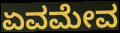
ಏವಮೇವ